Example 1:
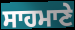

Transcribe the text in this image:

ਸਾਹਮਾਣੇ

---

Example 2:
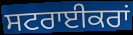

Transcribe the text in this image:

ਸਟਰਾਈਕਰਾਂ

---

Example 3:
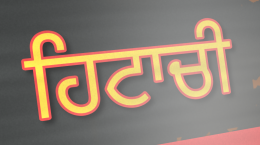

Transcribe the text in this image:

ਹਿਟਾਚੀ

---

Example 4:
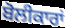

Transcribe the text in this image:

ਬੋਲੀਕਾਰਾਂ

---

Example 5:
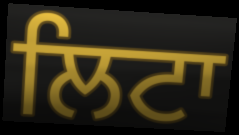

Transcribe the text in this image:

ਲਿਟਾ